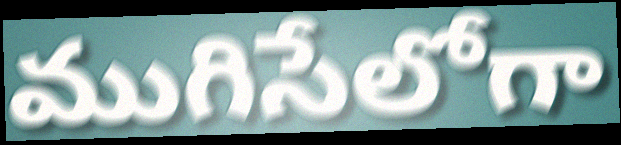
ముగిసేలోగా